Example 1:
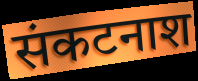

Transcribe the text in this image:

संकटनाश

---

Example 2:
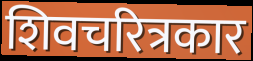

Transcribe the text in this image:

शिवचरित्रकार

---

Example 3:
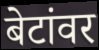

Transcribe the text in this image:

बेटांवर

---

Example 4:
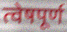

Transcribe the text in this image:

त्वेषपूर्ण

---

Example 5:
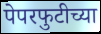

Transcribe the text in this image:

पेपरफुटीच्या